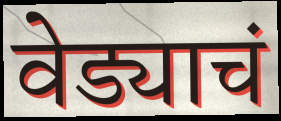
वेड्याचं